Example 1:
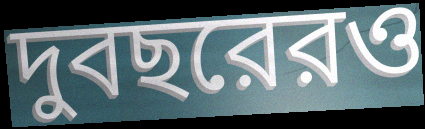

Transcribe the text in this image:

দুবছরেরও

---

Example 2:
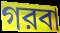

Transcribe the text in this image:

গরবা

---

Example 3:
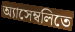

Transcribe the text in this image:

অ্যাসেম্বলিতে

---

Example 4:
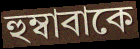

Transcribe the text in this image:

হুম্বাবাকে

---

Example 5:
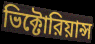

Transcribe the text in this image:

ভিক্টোরিয়ান্স